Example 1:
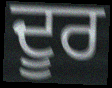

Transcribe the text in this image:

ਦੂਰ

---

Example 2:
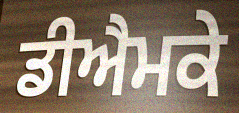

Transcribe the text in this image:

ਡੀਐਮਕੇ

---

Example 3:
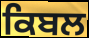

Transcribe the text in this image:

ਕਿਬਲ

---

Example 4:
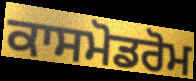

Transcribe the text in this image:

ਕਾਸਮੋਡਰੋਮ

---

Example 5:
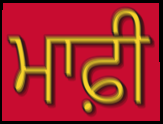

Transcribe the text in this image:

ਮਾਫ਼ੀ